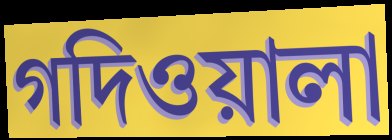
গদিওয়ালা